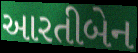
આરતીબેન